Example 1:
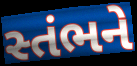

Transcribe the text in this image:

સ્તંભને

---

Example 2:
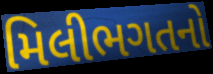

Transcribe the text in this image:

મિલીભગતનો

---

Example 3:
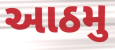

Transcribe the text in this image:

આઠમુ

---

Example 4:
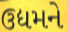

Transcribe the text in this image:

ઉદ્યમને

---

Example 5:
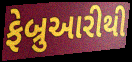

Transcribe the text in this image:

ફેબ્રુઆરીથી